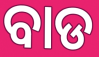
ବାଡ